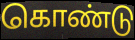
கொண்டு